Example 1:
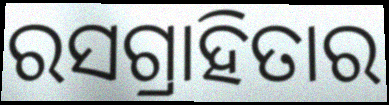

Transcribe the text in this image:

ରସଗ୍ରାହିତାର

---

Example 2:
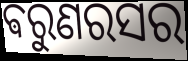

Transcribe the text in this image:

ଵରୁଣରସର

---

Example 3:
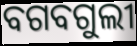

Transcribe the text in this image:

ବଗବଗୁଲୀ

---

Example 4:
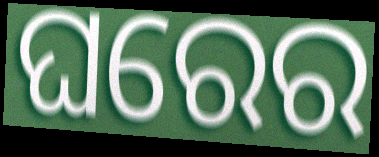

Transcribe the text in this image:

ଘରେର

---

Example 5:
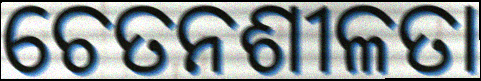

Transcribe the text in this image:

ଚେତନଶୀଳତା